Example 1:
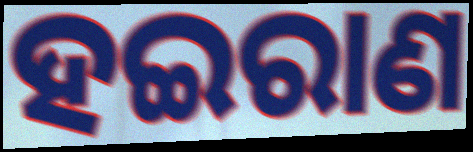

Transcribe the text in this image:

ହଇରାଣ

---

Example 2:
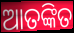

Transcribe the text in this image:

ଆତଙ୍କିତ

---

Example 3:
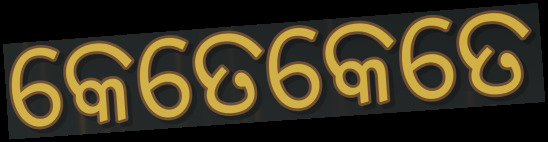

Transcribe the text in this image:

କେତେକେତେ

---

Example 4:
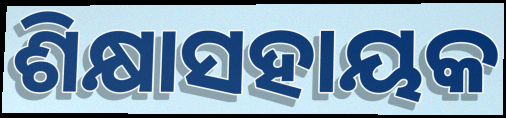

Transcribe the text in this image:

ଶିକ୍ଷାସହାୟକ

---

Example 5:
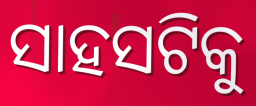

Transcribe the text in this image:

ସାହସଟିକୁ